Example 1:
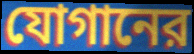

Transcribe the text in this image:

যোগানের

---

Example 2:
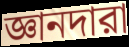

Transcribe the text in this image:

জ্ঞানদারা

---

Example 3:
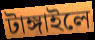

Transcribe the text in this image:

টাঙ্গাইলে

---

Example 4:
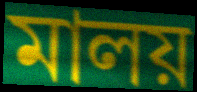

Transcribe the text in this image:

মালয়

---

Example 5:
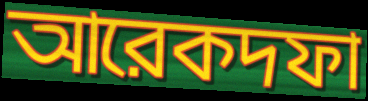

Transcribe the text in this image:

আরেকদফা